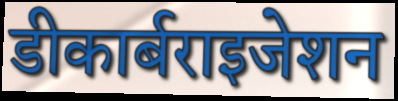
डीकार्बराइजेशन